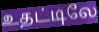
உதட்டிலே